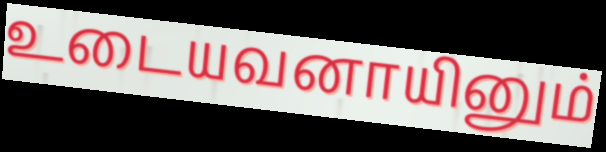
உடையவனாயினும்